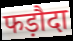
फड़ौदा